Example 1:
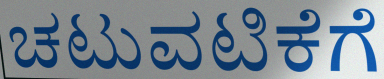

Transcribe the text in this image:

ಚಟುವಟಿಕೆಗೆ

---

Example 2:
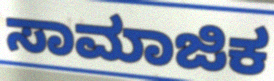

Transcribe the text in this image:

ಸಾಮಾಜಿಕ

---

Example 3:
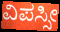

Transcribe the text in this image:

ವಿಪಸ್ಸೀ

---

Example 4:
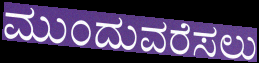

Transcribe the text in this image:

ಮುಂದುವರೆಸಲು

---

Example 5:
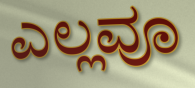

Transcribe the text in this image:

ಎಲ್ಲವೂ